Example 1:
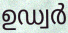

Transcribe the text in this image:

ഉഡ്വർ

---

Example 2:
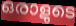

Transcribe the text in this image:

ഒരാളുടെ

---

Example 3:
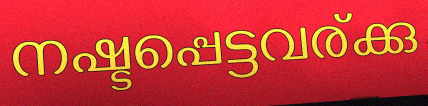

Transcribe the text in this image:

നഷ്ടപ്പെട്ടവര്ക്കു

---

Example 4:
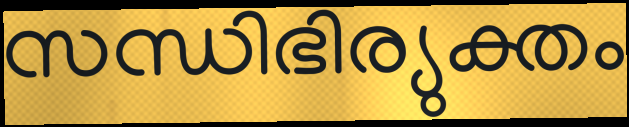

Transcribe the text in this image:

സന്ധിഭിര്യുക്തം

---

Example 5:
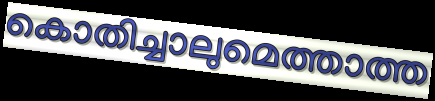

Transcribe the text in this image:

കൊതിച്ചാലുമെത്താത്ത